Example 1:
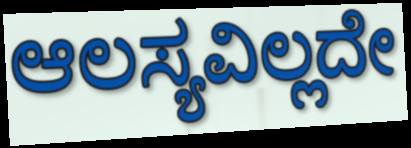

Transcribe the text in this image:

ಆಲಸ್ಯವಿಲ್ಲದೇ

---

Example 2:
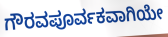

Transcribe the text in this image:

ಗೌರವಪೂರ್ವಕವಾಗಿಯೇ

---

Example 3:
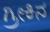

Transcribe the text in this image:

ಗ್ರೀಕಿನ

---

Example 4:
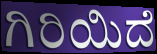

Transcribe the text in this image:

ಗಿರಿಯಿದೆ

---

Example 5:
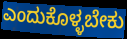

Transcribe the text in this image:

ಎಂದುಕೊಳ್ಳಬೇಕು